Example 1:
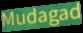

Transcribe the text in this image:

Mudagad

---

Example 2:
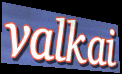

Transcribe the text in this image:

valkai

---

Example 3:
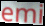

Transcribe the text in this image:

emi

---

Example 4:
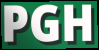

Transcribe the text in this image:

PGH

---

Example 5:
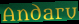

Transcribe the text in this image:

Andaru